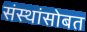
संस्थांसोबत